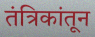
तंत्रिकांतून